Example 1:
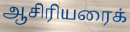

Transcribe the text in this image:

ஆசிரியரைக்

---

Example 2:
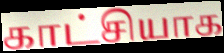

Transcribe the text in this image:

காட்சியாக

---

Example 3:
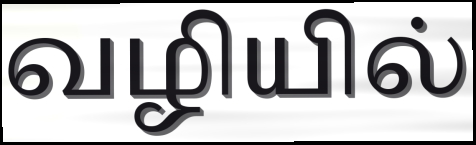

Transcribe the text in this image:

வழியில்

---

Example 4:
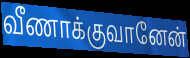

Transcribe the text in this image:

வீணாக்குவானேன்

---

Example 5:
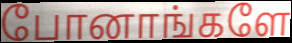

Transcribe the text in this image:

போனாங்களே